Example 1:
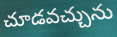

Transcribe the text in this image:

చూడవచ్చును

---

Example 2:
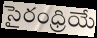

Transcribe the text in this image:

సైరంధ్రియే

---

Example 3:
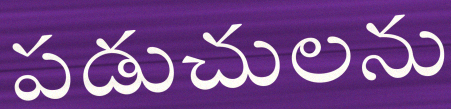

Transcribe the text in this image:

పడుచులను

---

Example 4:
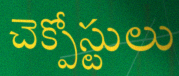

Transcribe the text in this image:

చెక్పోస్టులు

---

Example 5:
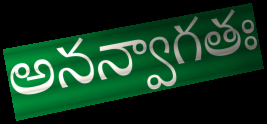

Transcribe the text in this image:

అనన్వాగతః